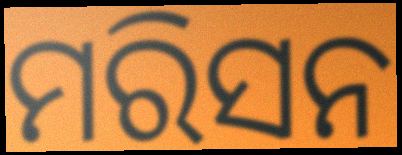
ମରିସନ